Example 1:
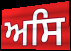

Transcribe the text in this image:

ਅਸਿ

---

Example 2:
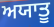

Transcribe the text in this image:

ਅਯਾਤੂ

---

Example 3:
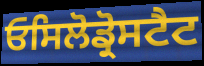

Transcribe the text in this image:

ਓਸਿਲੋਡ੍ਰੋਸਟੈਟ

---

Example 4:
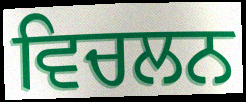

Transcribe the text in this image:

ਵਿਚਲਨ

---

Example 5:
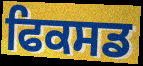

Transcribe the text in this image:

ਫਿਕਸਡ